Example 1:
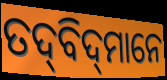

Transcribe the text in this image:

ତଦ୍‌ବିଦ୍‌ମାନେ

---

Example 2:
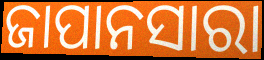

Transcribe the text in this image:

ଜାପାନସାରା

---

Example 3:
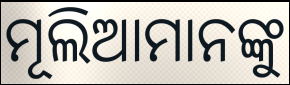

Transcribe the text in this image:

ମୂଲିଆମାନଙ୍କୁ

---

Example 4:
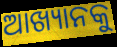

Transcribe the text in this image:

ଆଖ୍ୟାନକୁ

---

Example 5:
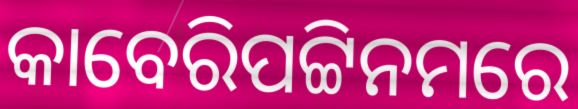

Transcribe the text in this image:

କାବେରିପଟ୍ଟିନମରେ